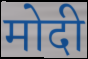
मोदी